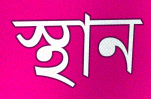
স্থান